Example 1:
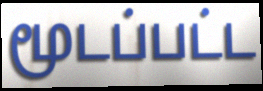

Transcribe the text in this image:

மூடப்பட்ட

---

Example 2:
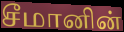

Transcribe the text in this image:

சீமானின்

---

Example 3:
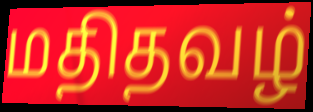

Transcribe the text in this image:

மதிதவழ்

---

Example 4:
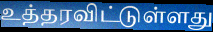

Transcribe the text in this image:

உத்தரவிட்டுள்ளது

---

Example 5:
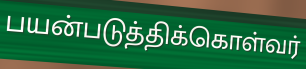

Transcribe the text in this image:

பயன்படுத்திக்கொள்வர்